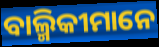
ବାଲ୍ମିକୀମାନେ